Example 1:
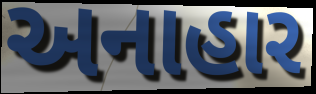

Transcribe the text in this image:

અનાહાર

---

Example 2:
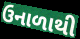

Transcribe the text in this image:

ઉનાળાથી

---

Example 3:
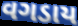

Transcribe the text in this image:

વગડાય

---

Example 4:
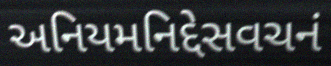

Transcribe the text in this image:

અનિયમનિદ્દેસવચનં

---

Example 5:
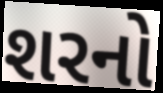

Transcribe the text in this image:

શરનો